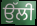
ਉੱਲੀ